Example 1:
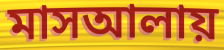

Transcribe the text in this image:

মাসআলায়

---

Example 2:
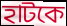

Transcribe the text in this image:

হাটকে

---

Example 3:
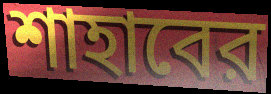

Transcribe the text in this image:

শাহাবের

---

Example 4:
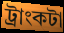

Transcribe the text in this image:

ট্রাংকটা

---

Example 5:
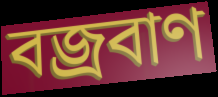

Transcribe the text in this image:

বজ্রবাণ